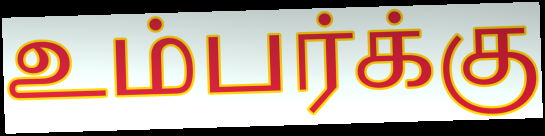
உம்பர்க்கு